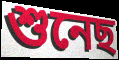
শুনেছ